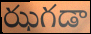
ఝగడా